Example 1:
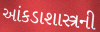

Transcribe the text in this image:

આંકડાશાસ્ત્રની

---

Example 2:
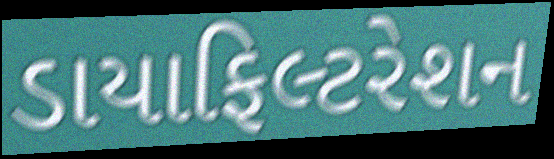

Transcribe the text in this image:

ડાયાફિલ્ટરેશન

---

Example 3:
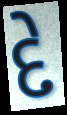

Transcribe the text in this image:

દે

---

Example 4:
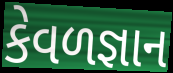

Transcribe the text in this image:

કેવળજ્ઞાન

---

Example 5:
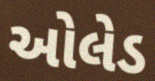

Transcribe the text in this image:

ઓલેડ